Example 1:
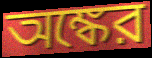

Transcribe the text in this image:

অঙ্কের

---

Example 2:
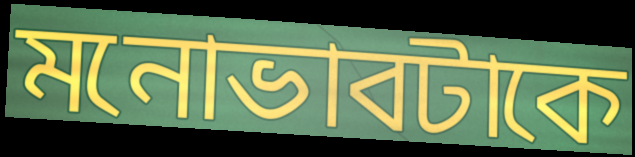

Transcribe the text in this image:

মনোভাবটাকে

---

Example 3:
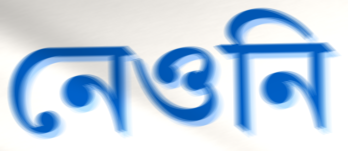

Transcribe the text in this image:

নেওনি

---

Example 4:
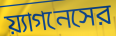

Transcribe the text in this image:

য়্যাগনেসের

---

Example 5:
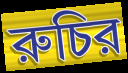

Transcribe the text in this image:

রুচির